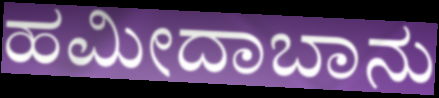
ಹಮೀದಾಬಾನು